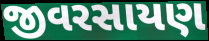
જીવરસાયણ